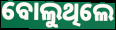
ବୋଲୁଥିଲେ